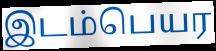
இடம்பெயர